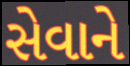
સેવાને